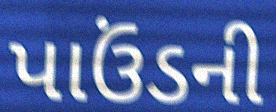
પાઉંડની